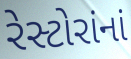
રેસ્ટોરાંનાં